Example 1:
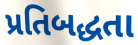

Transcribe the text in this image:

પ્રતિબદ્ધતા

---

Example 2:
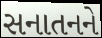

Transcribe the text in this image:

સનાતનને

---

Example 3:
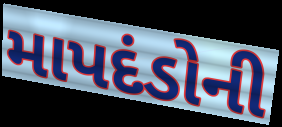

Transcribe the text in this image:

માપદંડોની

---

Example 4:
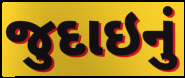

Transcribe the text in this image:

જુદાઇનું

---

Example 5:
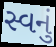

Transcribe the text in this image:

સ્વનું